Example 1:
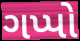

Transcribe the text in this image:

ગપ્પો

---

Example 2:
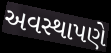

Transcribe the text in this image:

અવસ્થાપણે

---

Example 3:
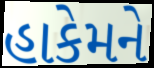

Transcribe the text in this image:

હાકેમને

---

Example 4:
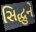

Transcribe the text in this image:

સિદ્ધુને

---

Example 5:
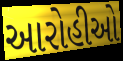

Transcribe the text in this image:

આરોહીઓ